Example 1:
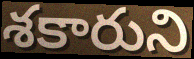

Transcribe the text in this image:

శకారుని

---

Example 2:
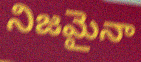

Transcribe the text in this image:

నిజమైనా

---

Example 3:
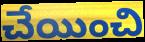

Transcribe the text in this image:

చేయించి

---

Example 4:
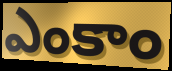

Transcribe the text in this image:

ఎంకాం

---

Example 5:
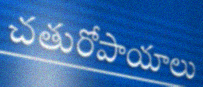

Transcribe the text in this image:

చతురోపాయాలు